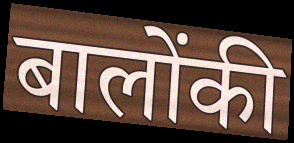
बालोंकी